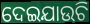
ଦେଇଯାଉଚି